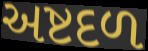
અષ્ટદળ